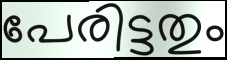
പേരിട്ടതും